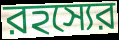
রহস্যের